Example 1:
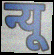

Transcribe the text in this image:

न्यू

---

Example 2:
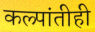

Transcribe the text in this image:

कल्पांतीही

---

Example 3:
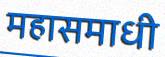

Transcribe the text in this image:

महासमाधी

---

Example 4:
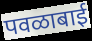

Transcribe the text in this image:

पवळाबाई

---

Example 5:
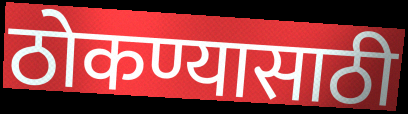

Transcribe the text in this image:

ठोकण्यासाठी